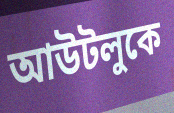
আউটলুকে